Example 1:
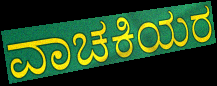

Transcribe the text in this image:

ವಾಚಕಿಯರ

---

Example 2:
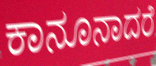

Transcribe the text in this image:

ಕಾನೂನಾದರೆ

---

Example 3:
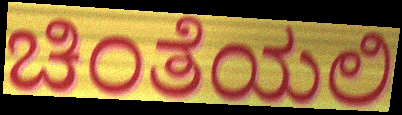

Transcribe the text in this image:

ಚಿಂತೆಯಲಿ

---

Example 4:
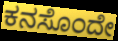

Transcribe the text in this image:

ಕನಸೊಂದೇ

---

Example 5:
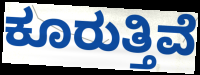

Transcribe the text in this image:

ಕೂರುತ್ತಿವೆ